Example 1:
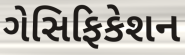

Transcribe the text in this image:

ગેસિફિકેશન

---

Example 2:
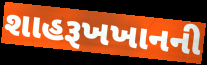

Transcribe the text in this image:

શાહરૂખખાનની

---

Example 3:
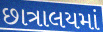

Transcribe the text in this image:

છાત્રાલયમાં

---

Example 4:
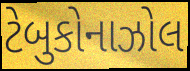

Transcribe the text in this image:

ટેબુકોનાઝોલ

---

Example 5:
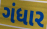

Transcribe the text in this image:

ગંધાર